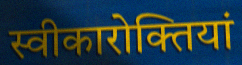
स्वीकारोक्तियां